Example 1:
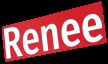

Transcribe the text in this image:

Renee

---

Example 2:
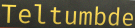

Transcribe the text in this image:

Teltumbde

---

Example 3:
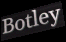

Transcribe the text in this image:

Botley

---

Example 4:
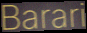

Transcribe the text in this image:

Barari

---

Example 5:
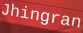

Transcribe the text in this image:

Jhingran